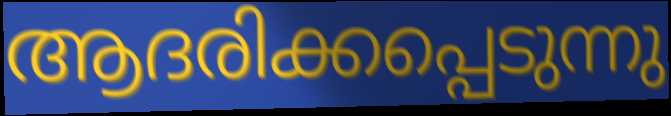
ആദരിക്കപ്പെടുന്നു